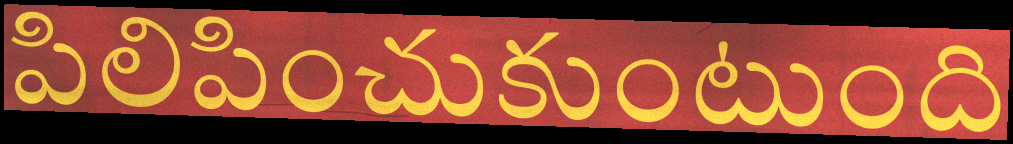
పిలిపించుకుంటుంది